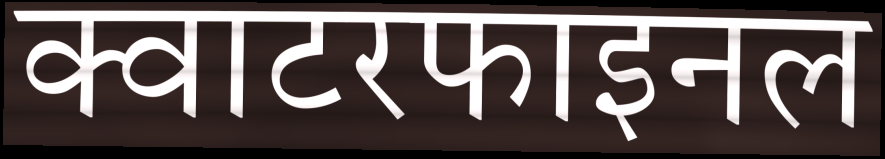
क्वाटरफाइनल